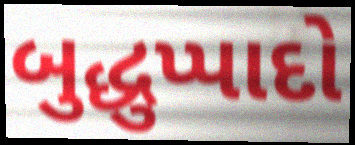
બુદ્ધુપ્પાદો